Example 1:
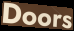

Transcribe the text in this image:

Doors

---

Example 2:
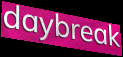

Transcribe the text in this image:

daybreak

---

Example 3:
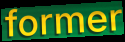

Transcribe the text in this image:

former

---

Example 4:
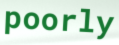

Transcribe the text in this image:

poorly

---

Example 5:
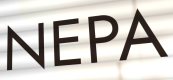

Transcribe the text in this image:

NEPA